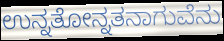
ಉನ್ನತೋನ್ನತನಾಗುವೆನು